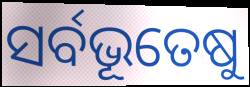
ସର୍ବଭୂତେଷୁ